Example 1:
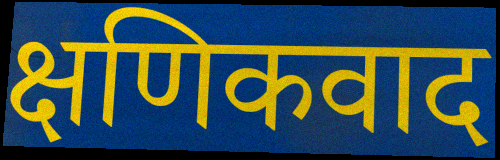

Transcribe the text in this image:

क्षणिकवाद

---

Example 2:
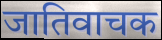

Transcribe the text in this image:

जातिवाचक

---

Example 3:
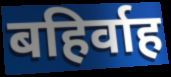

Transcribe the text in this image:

बहिर्वाह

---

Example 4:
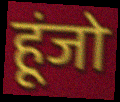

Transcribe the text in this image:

हूंजो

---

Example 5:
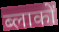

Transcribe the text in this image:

ब्लाकों